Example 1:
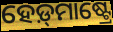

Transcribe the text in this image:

ହେଡ଼୍‍ମାଷ୍ଟ୍ରେ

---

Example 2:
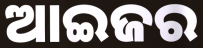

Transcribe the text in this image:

ଆଇଜର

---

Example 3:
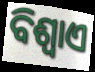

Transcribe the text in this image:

ବିଶ୍ୱାଏ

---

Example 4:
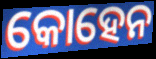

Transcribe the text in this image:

କୋହେନ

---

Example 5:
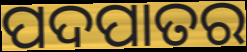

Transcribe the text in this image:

ପଦପାତର